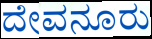
ದೇವನೂರು